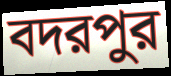
বদরপুর